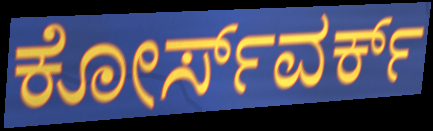
ಕೋರ್ಸ್‌ವರ್ಕ್